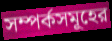
সম্পর্কসমূহের